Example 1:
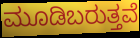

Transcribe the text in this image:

ಮೂಡಿಬರುತ್ತವೆ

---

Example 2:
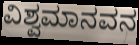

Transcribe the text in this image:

ವಿಶ್ವಮಾನವನ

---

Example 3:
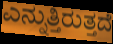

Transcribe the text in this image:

ಎನ್ನುತ್ತಿರುತ್ತದೆ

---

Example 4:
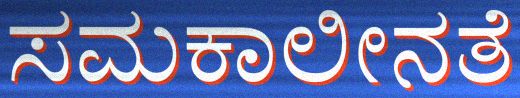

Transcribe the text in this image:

ಸಮಕಾಲೀನತೆ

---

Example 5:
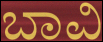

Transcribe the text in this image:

ಬಾವಿ